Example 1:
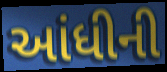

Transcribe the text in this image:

આંધીની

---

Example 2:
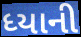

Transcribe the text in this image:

ધ્યાની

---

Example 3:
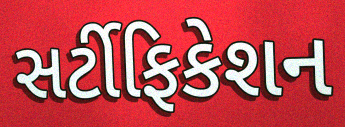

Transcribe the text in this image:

સર્ટીફિકેશન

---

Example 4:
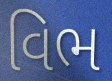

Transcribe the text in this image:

વિભ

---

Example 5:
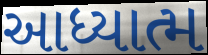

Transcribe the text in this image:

આધ્યાત્મ